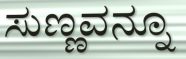
ಸುಣ್ಣವನ್ನೂ